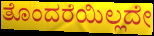
ತೊಂದರೆಯಿಲ್ಲದೇ